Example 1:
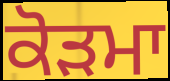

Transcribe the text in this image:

ਕੋੜਮਾ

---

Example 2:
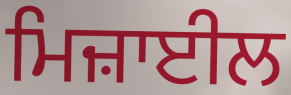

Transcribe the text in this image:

ਮਿਜ਼ਾਈਲ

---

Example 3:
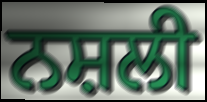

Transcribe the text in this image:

ਨਸ਼ਲੀ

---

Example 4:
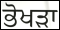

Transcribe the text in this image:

ਭੋਖੜਾ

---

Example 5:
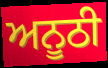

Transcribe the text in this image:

ਅਨੂਠੀ